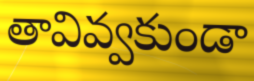
తావివ్వకుండా